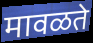
मावळते